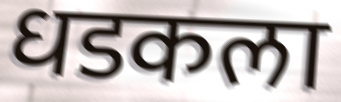
धडकला